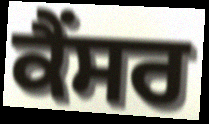
ਕੈੰਸਰ